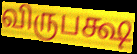
விருபக்ஷ